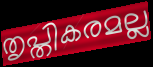
തൃപ്തികരമല്ല